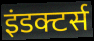
इंडक्टर्स